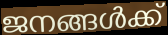
ജനങ്ങൾക്ക്